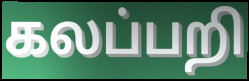
கலப்பறி